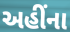
અહીંના